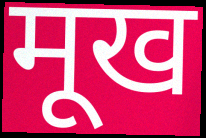
मूख